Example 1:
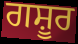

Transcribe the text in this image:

ਗਸ਼ੂਰ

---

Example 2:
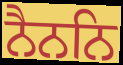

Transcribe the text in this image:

ਨੈਨਨਿ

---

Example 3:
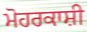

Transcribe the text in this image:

ਮੋਹਰਕਾਸ਼ੀ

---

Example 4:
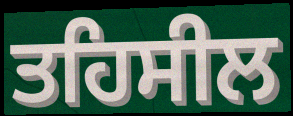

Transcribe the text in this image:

ਤਹਿਸੀਲ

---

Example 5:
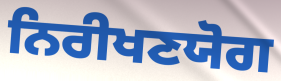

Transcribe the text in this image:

ਨਿਰੀਖਣਯੋਗ